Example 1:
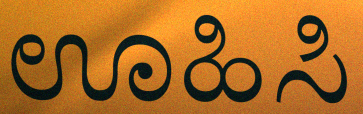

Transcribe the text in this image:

ಊಹಿಸಿ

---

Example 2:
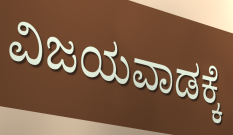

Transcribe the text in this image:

ವಿಜಯವಾಡಕ್ಕೆ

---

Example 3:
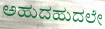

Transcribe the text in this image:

ಅಹುದಹುದಲೇ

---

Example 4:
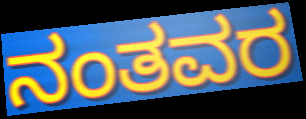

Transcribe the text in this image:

ನಂತವರ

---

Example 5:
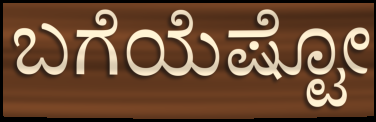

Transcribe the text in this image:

ಬಗೆಯೆಷ್ಟೋ